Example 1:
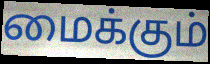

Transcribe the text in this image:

மைக்கும்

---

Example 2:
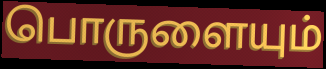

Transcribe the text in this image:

பொருளையும்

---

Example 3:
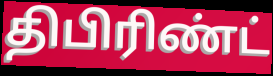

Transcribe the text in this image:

திபிரிண்ட்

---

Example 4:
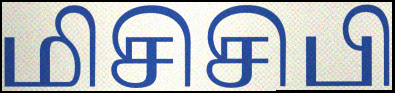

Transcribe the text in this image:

மிசிசிபி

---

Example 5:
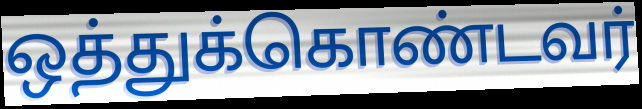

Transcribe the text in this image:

ஒத்துக்கொண்டவர்